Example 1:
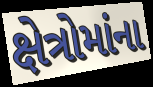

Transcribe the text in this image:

ક્ષેત્રોમાંના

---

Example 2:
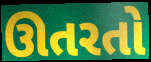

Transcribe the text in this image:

ઊતરતો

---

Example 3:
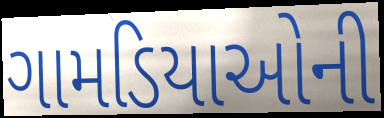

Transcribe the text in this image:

ગામડિયાઓની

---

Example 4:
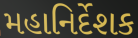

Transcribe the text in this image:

મહાનિર્દેશક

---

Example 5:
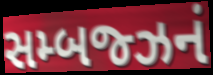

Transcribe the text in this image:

સમ્બજ્ઝનં